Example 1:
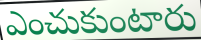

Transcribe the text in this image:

ఎంచుకుంటారు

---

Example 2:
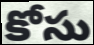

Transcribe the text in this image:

కోసు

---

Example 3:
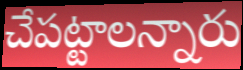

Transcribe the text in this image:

చేపట్టాలన్నారు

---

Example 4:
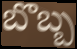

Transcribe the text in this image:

బొబ్బ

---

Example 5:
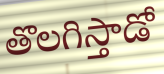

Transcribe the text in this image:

తొలగిస్తాడో